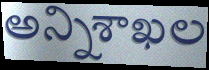
అన్నిశాఖల